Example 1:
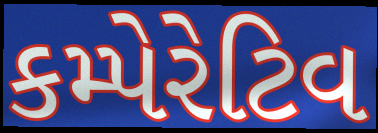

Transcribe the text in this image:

કમ્પેરેટિવ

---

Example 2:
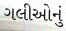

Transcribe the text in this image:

ગલીઓનું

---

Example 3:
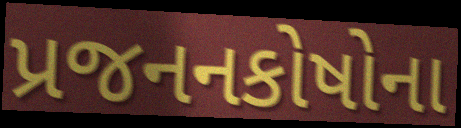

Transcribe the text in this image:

પ્રજનનકોષોના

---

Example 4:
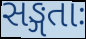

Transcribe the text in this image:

સઙ્ગતાઃ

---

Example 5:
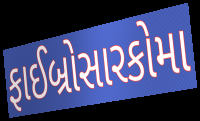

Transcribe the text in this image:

ફાઈબ્રોસારકોમા